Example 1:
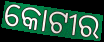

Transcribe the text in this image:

କୋଟୀର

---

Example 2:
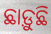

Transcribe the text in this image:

ଛାଡ଼ୁଛି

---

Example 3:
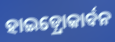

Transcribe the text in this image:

ହାଇଡ଼୍ରୋକାର୍ବନ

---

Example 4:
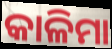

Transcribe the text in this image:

କାଳିମା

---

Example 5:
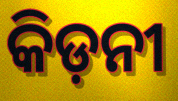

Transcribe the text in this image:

କିଡ଼ନୀ